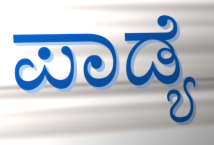
ಪಾಡ್ಯೆ